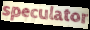
speculator